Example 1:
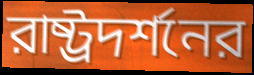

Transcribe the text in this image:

রাষ্ট্রদর্শনের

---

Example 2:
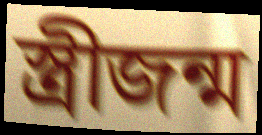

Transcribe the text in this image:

স্ত্রীজন্ম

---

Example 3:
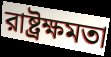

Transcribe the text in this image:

রাষ্ট্রক্ষমতা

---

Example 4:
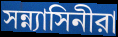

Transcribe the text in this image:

সন্ন্যাসিনীরা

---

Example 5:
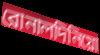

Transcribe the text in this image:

রোনালদিনিয়ো